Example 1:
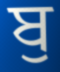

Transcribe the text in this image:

ਬੁ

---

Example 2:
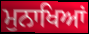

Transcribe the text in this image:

ਮੁਨਾਖਿਆਂ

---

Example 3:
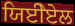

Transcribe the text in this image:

ਯਿਈੇਏਲ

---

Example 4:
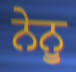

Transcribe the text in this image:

ਨੇਨੂ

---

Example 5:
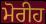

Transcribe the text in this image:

ਮੋਰੀਹ